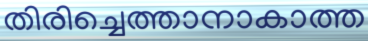
തിരിച്ചെത്താനാകാത്ത